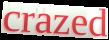
crazed